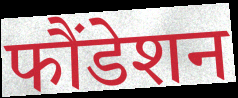
फौंडेशन